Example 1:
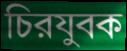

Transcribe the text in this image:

চিরযুবক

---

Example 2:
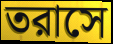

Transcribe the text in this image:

তরাসে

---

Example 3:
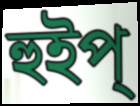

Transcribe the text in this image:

হুইপ্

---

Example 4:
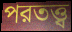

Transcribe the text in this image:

পরতত্ত্ব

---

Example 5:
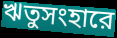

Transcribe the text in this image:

ঋতুসংহারে